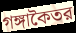
গঙ্গাকৈতর